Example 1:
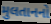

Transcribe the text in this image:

મુલતાનનો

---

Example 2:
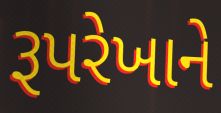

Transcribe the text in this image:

રૂપરેખાને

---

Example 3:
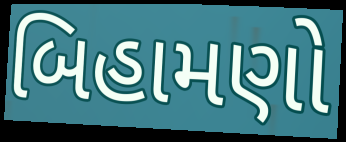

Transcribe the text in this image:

બિહામણો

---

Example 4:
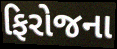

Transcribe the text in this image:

ફિરોજના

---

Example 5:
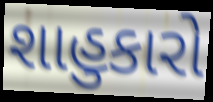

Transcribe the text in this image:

શાહુકારો